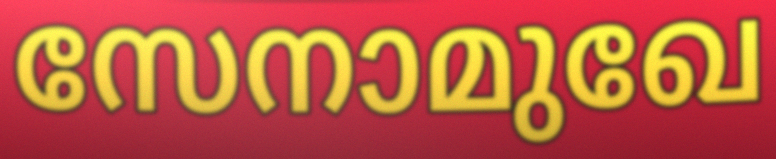
സേനാമുഖേ